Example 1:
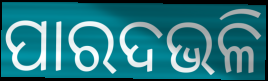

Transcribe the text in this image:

ପାରଦଭଳି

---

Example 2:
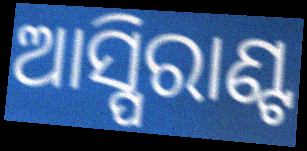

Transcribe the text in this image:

ଆସ୍ପିରାଣ୍ଟ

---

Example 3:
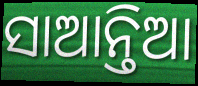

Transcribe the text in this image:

ସାଆନ୍ତିଆ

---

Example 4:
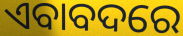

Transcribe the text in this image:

ଏବାବଦରେ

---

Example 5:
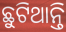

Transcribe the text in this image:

ଛୁଟିଥାନ୍ତି